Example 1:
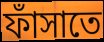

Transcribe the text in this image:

ফাঁসাতে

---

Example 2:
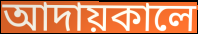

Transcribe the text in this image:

আদায়কালে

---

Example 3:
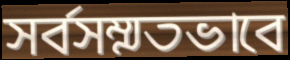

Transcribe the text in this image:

সর্বসম্মতভাবে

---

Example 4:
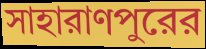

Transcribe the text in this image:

সাহারাণপুরের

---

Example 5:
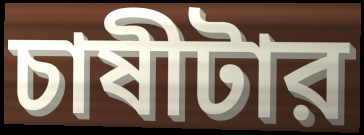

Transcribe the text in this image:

চাষীটার